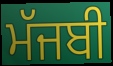
ਮੱਜਬੀ